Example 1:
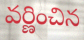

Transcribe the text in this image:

వర్ణించిన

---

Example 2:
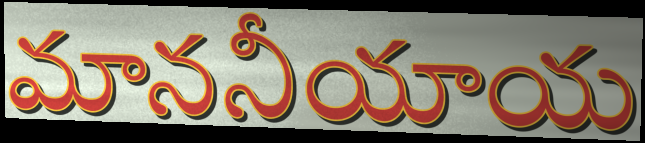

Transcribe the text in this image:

మాననీయాయ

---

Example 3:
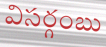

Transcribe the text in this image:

విసర్గంబు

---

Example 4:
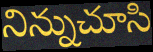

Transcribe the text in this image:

నిన్నుచూసి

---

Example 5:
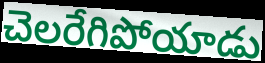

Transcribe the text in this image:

చెలరేగిపోయాడు